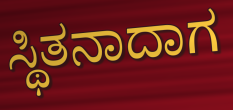
ಸ್ಥಿತನಾದಾಗ